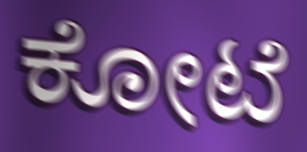
ಕೋಟೆ